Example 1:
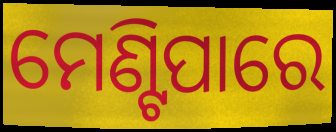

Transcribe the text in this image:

ମେଣ୍ଟିପାରେ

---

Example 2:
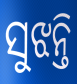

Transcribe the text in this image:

ସୁଝନ୍ତି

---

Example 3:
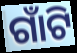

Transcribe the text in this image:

ଗାଁଟି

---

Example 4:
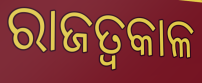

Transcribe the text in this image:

ରାଜତ୍ଵକାଳ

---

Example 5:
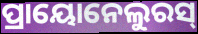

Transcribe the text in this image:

ପ୍ରାୟୋନେଲୁରସ୍